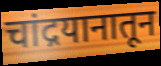
चांद्रयानातून